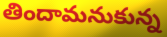
తిందామనుకున్న